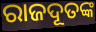
ରାଜଦୂତଙ୍କ